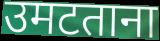
उमटताना